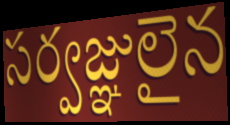
సర్వజ్ఞులైన